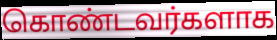
கொண்டவர்களாக